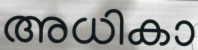
അധികാ